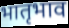
भातृभाव